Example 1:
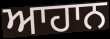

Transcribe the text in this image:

ਆਹਾਨ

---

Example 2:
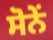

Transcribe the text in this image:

ਸੋਨੇਂ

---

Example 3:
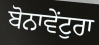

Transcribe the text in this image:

ਬੋਨਾਵੇਂਟੁਰਾ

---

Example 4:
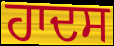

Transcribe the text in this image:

ਹਾਦਸ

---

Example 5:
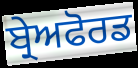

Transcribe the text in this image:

ਬ੍ਰੇਅਫੋਰਡ